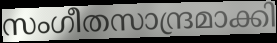
സംഗീതസാന്ദ്രമാക്കി